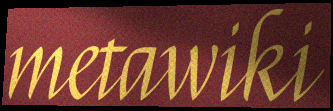
metawiki